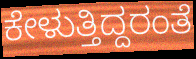
ಕೇಳುತ್ತಿದ್ದರಂತೆ